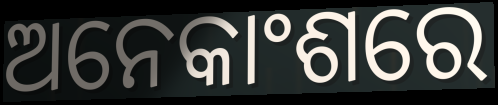
ଅନେକାଂଶରେ